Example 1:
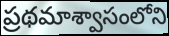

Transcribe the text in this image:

ప్రథమాశ్వాసంలోని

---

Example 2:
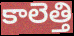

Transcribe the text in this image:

కాలెత్తి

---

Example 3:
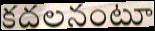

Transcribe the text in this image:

కదలనంటూ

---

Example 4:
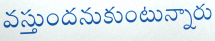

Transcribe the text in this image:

వస్తుందనుకుంటున్నారు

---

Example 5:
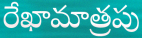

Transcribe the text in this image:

రేఖామాత్రపు